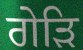
ਗੇੜਿ